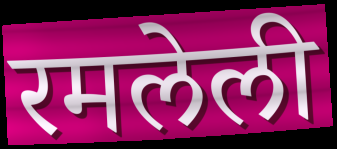
रमलेली